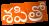
శపితో